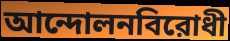
আন্দোলনবিরোধী